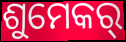
ଶୁମେକର୍